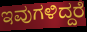
ಇವುಗಳಿದ್ದರೆ